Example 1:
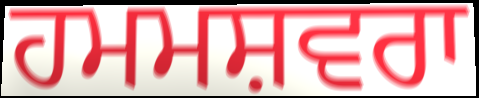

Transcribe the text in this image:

ਹਮਮਸ਼ਵਰਾ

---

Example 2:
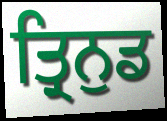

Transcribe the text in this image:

ਤ੍ਰਿਨੁਡ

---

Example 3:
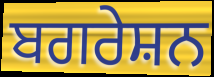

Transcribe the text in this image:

ਬਗਰੇਸ਼ਨ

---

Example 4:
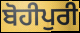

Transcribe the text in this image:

ਬੋਹੀਪੁਰੀ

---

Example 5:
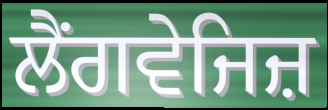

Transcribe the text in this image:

ਲੈਂਗਵੇਜਿਜ਼